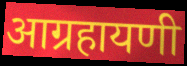
आग्रहायणी